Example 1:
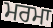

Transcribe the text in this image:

ਮਰਮਾ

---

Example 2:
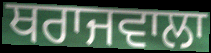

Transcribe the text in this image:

ਥਰਾਜਵਾਲਾ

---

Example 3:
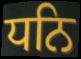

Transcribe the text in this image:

ਧਨਿ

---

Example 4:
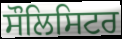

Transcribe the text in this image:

ਸੌਲਿਸਿਟਰ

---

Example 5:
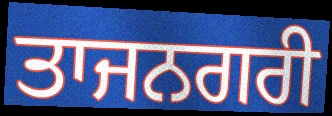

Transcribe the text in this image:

ਤਾਜਨਗਰੀ